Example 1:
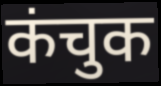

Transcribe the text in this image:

कंचुक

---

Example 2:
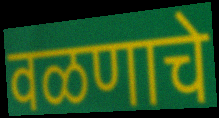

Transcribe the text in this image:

वळणाचे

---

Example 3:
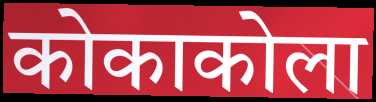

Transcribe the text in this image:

कोकाकोला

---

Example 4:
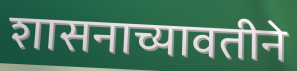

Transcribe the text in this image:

शासनाच्यावतीने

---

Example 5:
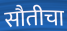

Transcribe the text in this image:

सौतीचा